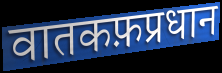
वातकफ़प्रधान